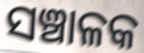
ସଞ୍ଚାଳକ